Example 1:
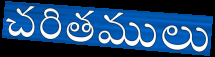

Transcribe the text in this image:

చరితములు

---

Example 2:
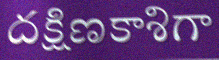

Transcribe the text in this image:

దక్షిణకాశిగా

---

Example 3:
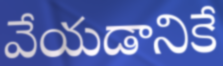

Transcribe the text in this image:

వేయడానికే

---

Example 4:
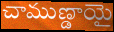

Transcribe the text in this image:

చాముణ్డాయై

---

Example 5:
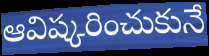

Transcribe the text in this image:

ఆవిష్కరించుకునే